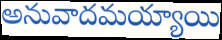
అనువాదమయ్యాయి